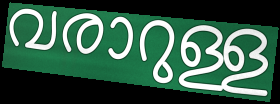
വരാറുള്ള